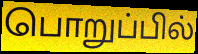
பொறுப்பில்